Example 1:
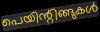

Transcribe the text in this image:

പെയിന്റിങ്ങുകൾ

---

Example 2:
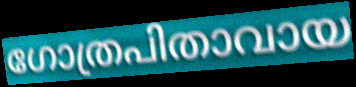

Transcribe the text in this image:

ഗോത്രപിതാവായ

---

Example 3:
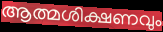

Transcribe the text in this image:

ആത്മശിക്ഷണവും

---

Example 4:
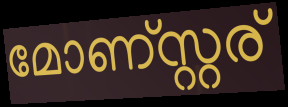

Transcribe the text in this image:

മോണ്സ്റ്റര്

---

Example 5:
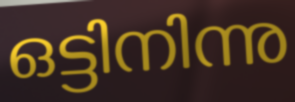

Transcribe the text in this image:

ഒട്ടിനിന്നു